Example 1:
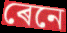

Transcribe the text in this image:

ৰেনে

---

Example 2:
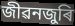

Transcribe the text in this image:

জীৱনজুৰি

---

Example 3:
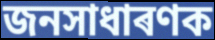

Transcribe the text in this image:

জনসাধাৰণক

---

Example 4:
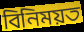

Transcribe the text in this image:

বিনিময়ত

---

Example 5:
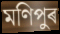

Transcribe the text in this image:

মণিপুৰ